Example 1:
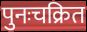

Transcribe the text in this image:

पुनःचक्रित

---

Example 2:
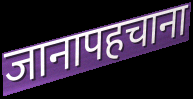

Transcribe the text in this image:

जानापहचाना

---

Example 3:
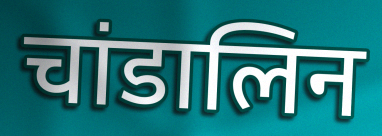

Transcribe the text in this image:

चांडालिन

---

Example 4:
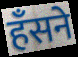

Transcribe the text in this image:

हँसने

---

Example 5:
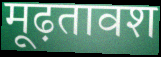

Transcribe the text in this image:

मूढ़तावश